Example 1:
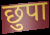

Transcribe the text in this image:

छुपा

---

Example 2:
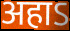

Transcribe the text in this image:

अहाऽ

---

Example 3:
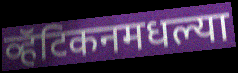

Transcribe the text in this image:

व्हॅटिकनमधल्या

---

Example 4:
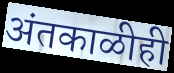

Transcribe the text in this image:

अंतकाळीही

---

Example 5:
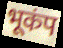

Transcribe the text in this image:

भूकंप